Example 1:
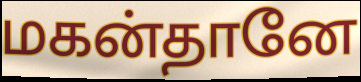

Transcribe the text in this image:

மகன்தானே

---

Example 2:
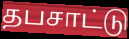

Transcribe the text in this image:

தபசாட்டு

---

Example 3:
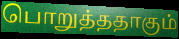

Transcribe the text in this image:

பொறுத்ததாகும்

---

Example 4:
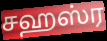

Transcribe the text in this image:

சஹஸ்ர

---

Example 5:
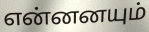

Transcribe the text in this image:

என்னனயும்